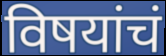
विषयांचं